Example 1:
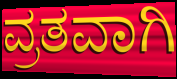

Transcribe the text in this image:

ವ್ರತವಾಗಿ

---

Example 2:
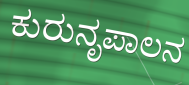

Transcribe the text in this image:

ಕುರುನೃಪಾಲನ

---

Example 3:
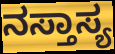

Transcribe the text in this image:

ನಸ್ತಾಸ್ಯ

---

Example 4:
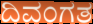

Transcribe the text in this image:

ದಿವಂಗತ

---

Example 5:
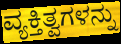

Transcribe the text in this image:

ವ್ಯಕ್ತಿತ್ವಗಳನ್ನು